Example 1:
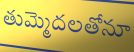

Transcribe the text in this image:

తుమ్మెదలతోనూ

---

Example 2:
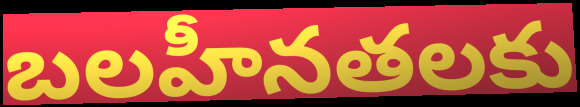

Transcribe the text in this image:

బలహీనతలకు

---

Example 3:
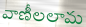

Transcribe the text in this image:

వాణీలలామ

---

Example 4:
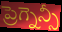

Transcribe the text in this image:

ప్రెగ్నెన్సీ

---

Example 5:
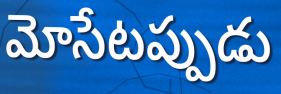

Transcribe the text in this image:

మోసేటప్పుడు